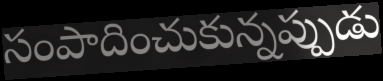
సంపాదించుకున్నప్పుడు